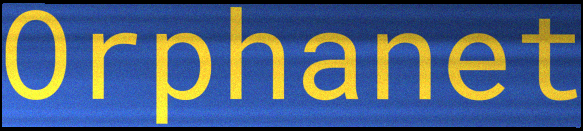
Orphanet